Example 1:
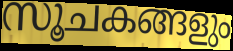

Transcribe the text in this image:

സൂചകങ്ങളും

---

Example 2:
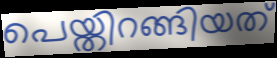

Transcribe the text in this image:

പെയ്തിറങ്ങിയത്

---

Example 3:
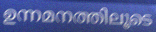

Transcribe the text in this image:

ഉന്നമനത്തിലൂടെ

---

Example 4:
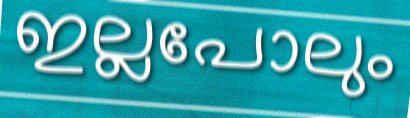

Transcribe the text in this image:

ഇല്ലപോലും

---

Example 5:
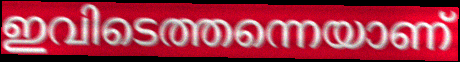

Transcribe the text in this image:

ഇവിടെത്തന്നെയാണ്